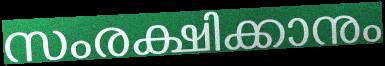
സംരക്ഷിക്കാനും